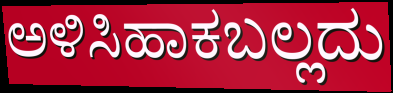
ಅಳಿಸಿಹಾಕಬಲ್ಲದು